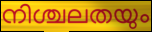
നിശ്ചലതയും